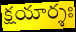
క్షయార్శః